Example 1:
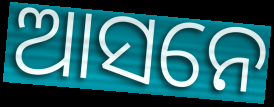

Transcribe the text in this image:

ଆସନେ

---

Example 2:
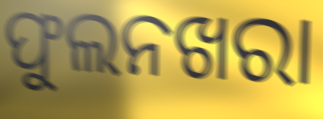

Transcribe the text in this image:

ଫୁଲନଖରା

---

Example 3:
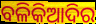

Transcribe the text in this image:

ବଳିକିଆଦିର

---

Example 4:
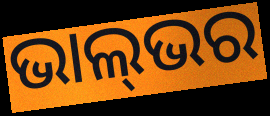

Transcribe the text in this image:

ଭାଲ୍‌ଭର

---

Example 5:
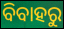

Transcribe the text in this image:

ବିବାହରୁ